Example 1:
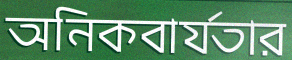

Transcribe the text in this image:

অনিকবার্যতার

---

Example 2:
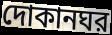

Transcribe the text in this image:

দোকানঘর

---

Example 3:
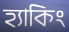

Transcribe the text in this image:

হ্যাকিং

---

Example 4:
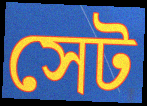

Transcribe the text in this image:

সেট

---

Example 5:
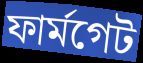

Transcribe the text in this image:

ফার্মগেট